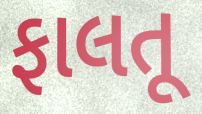
ફાલતૂ